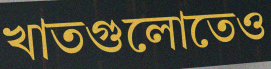
খাতগুলোতেও